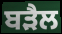
ਬੜੈਲ